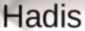
Hadis